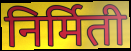
निर्मिती